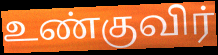
உண்குவிர்